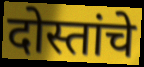
दोस्तांचे